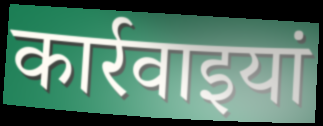
कार्रवाइयां